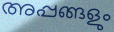
അപ്പങ്ങളും